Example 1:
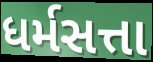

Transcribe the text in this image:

ધર્મસત્તા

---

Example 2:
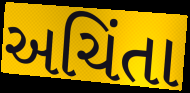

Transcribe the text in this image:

અચિંતા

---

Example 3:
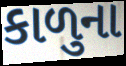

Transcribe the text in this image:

કાળુના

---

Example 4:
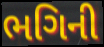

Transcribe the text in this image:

ભગિની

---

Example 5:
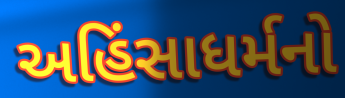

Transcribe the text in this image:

અહિંસાધર્મનો